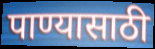
पाण्यासाठी